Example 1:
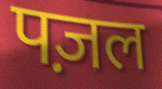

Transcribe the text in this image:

पज़ल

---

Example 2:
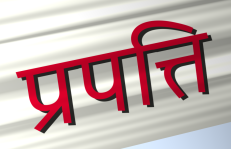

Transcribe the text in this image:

प्रपत्ति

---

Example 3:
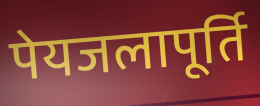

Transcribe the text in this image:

पेयजलापूर्ति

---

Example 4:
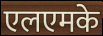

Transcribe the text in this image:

एलएमके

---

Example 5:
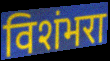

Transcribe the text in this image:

विशंभरा